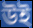
উই